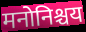
मनोनिश्चय